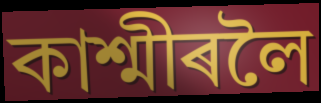
কাশ্মীৰলৈ